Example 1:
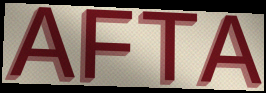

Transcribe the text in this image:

AFTA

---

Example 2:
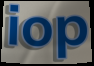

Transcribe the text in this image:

iop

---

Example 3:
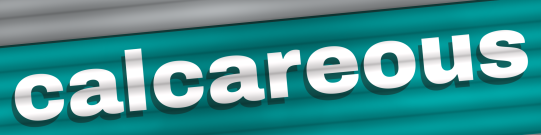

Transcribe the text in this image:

calcareous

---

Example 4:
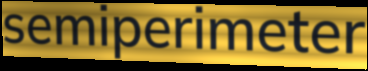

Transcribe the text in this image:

semiperimeter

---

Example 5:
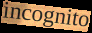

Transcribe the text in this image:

incognito